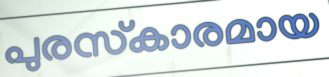
പുരസ്‌കാരമായ